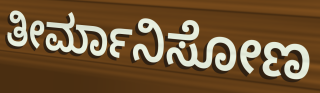
ತೀರ್ಮಾನಿಸೋಣ